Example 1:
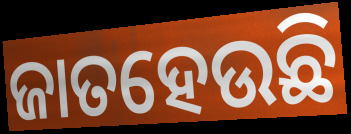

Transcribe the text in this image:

ଜାତହେଉଛି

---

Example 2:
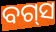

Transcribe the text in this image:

ବଗ୍‌ସ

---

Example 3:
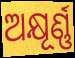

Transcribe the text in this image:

ଅକ୍ଷୂର୍ଣ୍ଣ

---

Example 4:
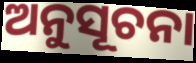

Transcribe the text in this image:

ଅନୁସୂଚନା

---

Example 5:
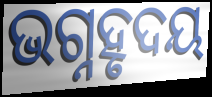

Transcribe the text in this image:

ଭଗ୍ନହୃଦୟ